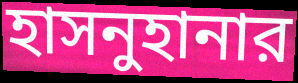
হাসনুহানার